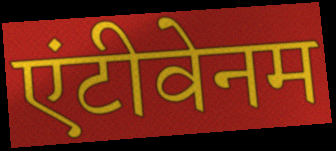
एंटीवेनम